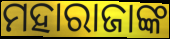
ମହାରାଜାଙ୍କ